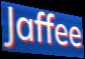
Jaffee